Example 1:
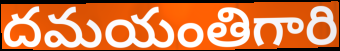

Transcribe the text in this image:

దమయంతిగారి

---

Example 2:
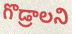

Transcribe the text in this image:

గొడ్రాలని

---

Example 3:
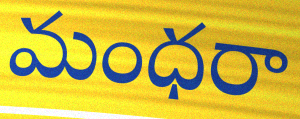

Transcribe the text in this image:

మంధరా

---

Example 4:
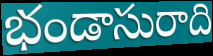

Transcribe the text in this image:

భండాసురాది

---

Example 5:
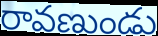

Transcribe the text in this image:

రావణుండు